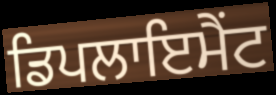
ਡਿਪਲਾਇਮੈਂਟ